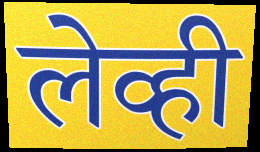
लेव्ही